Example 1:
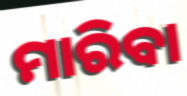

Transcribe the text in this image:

ମାରିବା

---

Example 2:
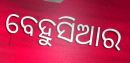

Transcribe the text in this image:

ବେହୁସିଆର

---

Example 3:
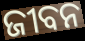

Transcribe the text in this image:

ଜୀବନ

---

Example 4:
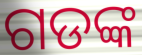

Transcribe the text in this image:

ଗଡଙ୍କ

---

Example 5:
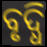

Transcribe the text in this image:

ବୃଦ୍ଧି